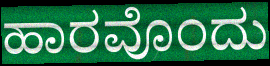
ಹಾರವೊಂದು